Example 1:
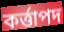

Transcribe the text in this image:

কৰ্ত্তাপদ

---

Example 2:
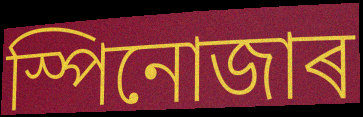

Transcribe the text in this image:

স্পিনোজাৰ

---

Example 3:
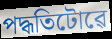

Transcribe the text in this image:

পদ্ধতিটোৱে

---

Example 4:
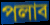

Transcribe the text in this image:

পলাব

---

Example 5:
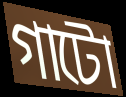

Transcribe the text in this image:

গাটো